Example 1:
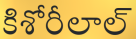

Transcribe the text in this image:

కిశోరీలాల్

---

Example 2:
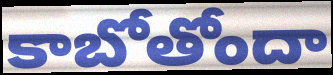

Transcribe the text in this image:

కాబోతోందా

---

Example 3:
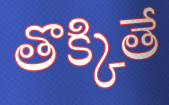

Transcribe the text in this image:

తొక్కితే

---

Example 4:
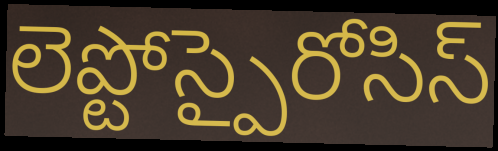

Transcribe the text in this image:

లెప్టోస్పైరోసిస్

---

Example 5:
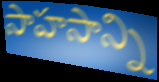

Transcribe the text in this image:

సాహసాన్ని